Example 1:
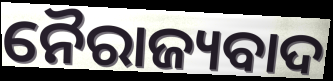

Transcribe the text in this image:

ନୈରାଜ୍ୟବାଦ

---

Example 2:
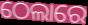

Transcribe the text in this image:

ଠେଲାରେ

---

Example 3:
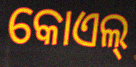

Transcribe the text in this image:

କୋଏଲ୍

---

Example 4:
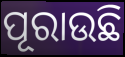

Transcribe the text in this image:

ପୂରାଉଛି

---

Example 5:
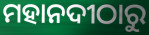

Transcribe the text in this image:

ମହାନଦୀଠାରୁ